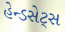
હેન્ડસેટ્સ